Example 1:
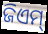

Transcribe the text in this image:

ଜିଏମ୍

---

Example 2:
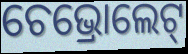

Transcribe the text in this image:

ଚେଭ୍ରୋଲେଟ୍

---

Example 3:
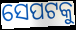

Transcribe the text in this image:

ସେପଟକୁ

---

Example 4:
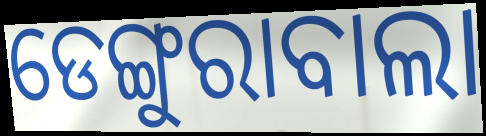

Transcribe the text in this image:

ଡେଙ୍ଗୁରାବାଲା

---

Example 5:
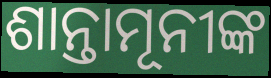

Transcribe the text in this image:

ଶାନ୍ତାମୂନୀଙ୍କ